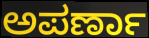
ಅಪರ್ಣಾ